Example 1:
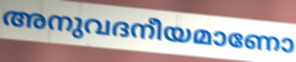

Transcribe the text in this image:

അനുവദനീയമാണോ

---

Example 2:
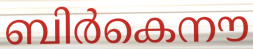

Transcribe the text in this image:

ബിർകെനൗ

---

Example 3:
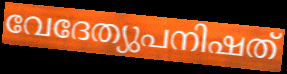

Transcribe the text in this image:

വേദേത്യുപനിഷത്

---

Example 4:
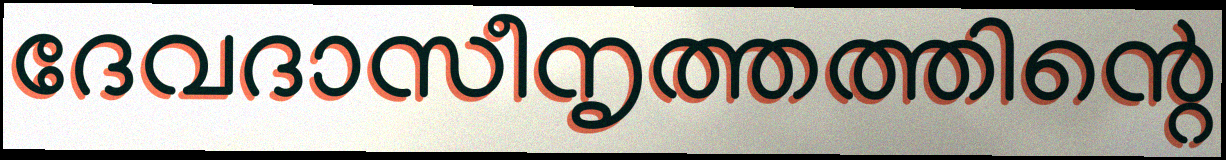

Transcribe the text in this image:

ദേവദാസീനൃത്തത്തിന്റെ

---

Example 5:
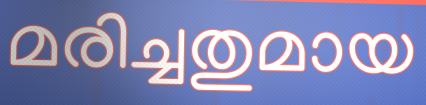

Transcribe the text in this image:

മരിച്ചതുമായ